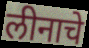
लीनाचे